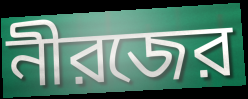
নীরজের